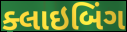
ક્લાઇબિંગ